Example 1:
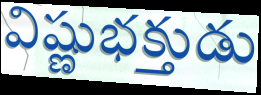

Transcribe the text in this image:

విష్ణుభక్తుడు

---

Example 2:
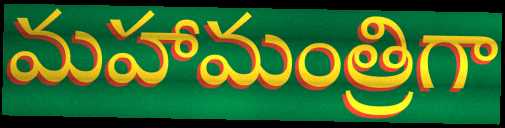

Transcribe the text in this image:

మహామంత్రిగా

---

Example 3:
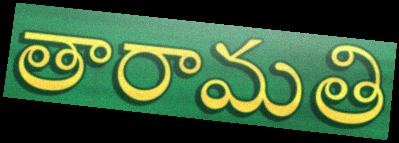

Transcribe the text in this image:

తారామతి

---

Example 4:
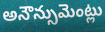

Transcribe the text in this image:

అనౌన్సుమెంట్లు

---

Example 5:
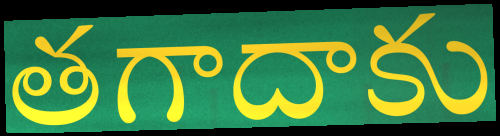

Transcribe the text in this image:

తగాదాకు